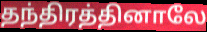
தந்திரத்தினாலே